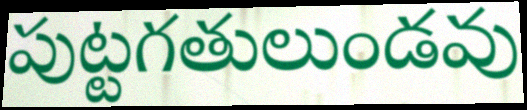
పుట్టగతులుండవు